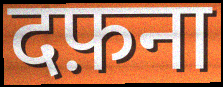
दफ़ना